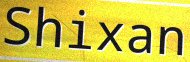
Shixan